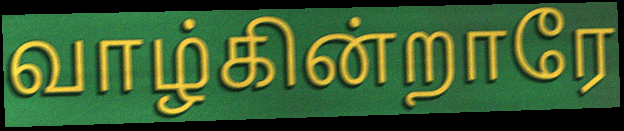
வாழ்கின்றாரே